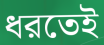
ধরতেই